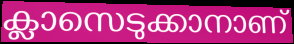
ക്ലാസെടുക്കാനാണ്